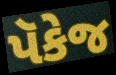
પૅકેજ